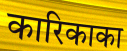
कारिकाका